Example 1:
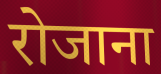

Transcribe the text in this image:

रोजाना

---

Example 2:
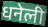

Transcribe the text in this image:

धनेली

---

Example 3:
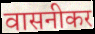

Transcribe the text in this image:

वासनीकर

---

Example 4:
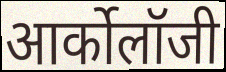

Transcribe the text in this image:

आर्कोलॉजी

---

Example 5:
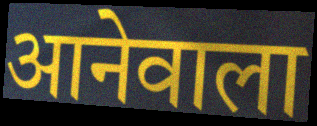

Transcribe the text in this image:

आनेवाला